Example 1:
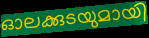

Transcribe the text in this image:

ഓലക്കുടയുമായി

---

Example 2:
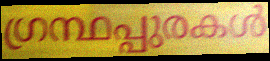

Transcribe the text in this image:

ഗ്രന്ഥപ്പുരകൾ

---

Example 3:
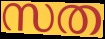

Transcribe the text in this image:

സത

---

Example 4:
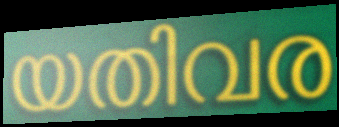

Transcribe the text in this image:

യതിവര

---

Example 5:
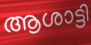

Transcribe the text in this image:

ആശാട്ടി